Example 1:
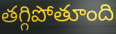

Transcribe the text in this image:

తగ్గిపోతూంది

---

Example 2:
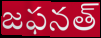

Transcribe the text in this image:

జఫనత్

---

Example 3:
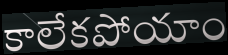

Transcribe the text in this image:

కాలేకపోయాం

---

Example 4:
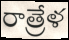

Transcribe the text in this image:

రాత్రేళ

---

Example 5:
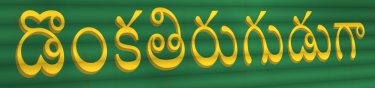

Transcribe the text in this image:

డొంకతిరుగుడుగా